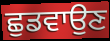
ਛੁਡਵਾਉਣ